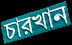
চারখান